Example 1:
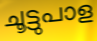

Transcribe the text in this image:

ചൂട്ടുപാള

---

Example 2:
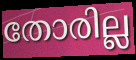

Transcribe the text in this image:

തോരില്ല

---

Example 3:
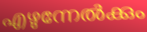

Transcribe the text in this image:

എഴുന്നേൽക്കും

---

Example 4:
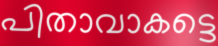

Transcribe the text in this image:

പിതാവാകട്ടെ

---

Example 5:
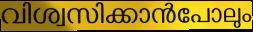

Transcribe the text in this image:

വിശ്വസിക്കാൻപോലും